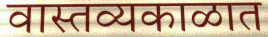
वास्तव्यकाळात